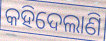
କହିଦେଲାଣି